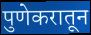
पुणेकरातून